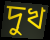
দুখ